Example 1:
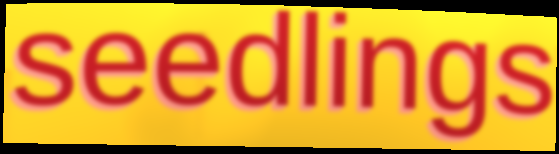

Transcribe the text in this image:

seedlings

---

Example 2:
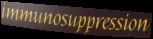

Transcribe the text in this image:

immunosuppression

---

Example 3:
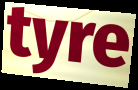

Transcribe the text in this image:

tyre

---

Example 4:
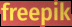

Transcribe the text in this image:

freepik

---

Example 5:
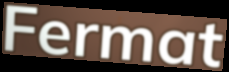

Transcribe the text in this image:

Fermat